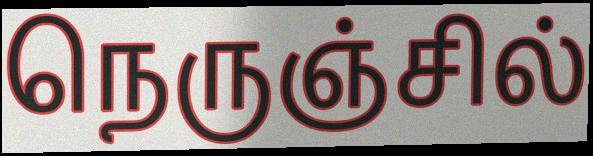
நெருஞ்சில்